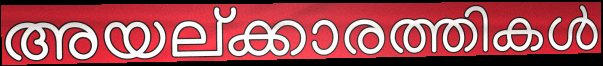
അയല്ക്കാരത്തികൾ